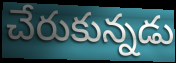
చేరుకున్నడు